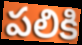
పలికి